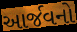
આર્જવનો